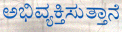
ಅಭಿವ್ಯಕ್ತಿಸುತ್ತಾನೆ